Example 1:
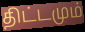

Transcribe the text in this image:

திட்டமும்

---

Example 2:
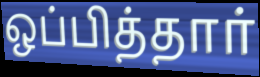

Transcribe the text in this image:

ஒப்பித்தார்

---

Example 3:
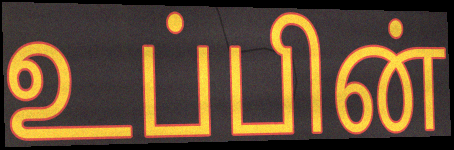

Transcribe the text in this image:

உப்பின்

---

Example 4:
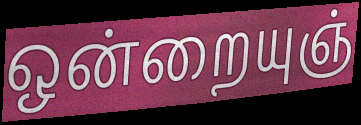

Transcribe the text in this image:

ஒன்றையுஞ்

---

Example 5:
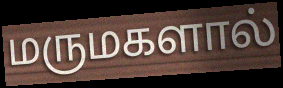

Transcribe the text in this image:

மருமகளால்